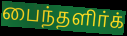
பைந்தளிர்க்